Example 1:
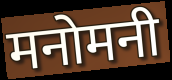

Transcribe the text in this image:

मनोमनी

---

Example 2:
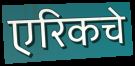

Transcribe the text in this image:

एरिकचे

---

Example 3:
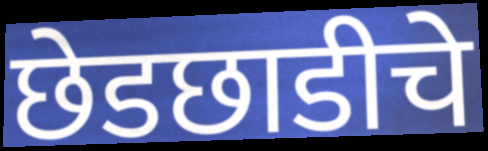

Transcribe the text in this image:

छेडछाडीचे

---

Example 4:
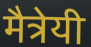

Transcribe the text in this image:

मैत्रेयी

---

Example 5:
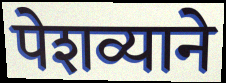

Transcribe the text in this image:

पेशव्याने